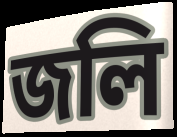
জলি